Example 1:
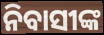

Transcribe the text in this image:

ନିବାସୀଙ୍କ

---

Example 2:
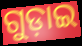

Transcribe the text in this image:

ଗୁଡ଼ାଇ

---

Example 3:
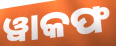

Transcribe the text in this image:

ୱାକଫ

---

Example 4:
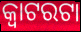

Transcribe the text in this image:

କ୍ଵାଟରଟା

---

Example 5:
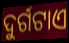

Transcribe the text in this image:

ଦୁର୍ଗଟାଏ